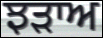
ਝੜਾਅ